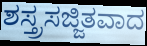
ಶಸ್ತ್ರಸಜ್ಜಿತವಾದ